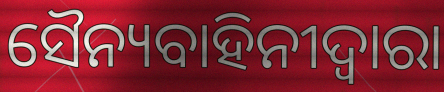
ସୈନ୍ୟବାହିନୀଦ୍ୱାରା